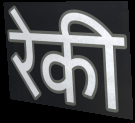
रेकी